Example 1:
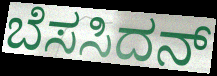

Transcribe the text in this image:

ಬೆಸಸಿದನ್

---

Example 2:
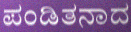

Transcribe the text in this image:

ಪಂಡಿತನಾದ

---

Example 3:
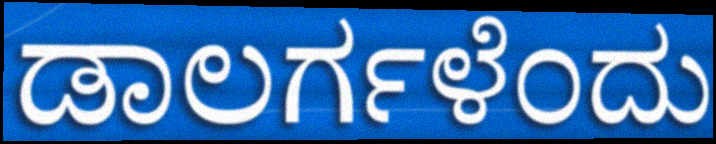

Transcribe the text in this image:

ಡಾಲರ್ಗಳೆಂದು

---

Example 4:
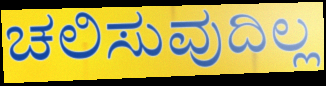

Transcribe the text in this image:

ಚಲಿಸುವುದಿಲ್ಲ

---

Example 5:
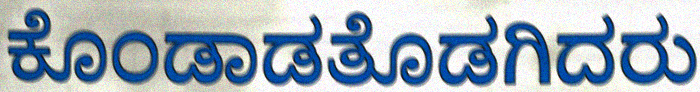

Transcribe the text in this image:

ಕೊಂಡಾಡತೊಡಗಿದರು